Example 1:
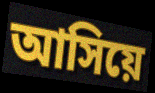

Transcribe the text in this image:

আসিয়ে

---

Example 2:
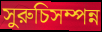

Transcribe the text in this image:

সুরুচিসম্পন্ন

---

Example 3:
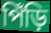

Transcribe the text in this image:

পিঁড়ি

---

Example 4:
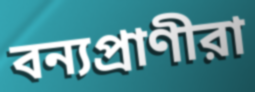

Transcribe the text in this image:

বন্যপ্রাণীরা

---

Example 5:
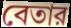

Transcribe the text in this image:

বেতার